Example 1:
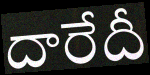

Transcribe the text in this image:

దారేదీ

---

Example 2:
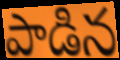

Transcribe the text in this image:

పాడిన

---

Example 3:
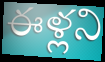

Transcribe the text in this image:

ఈళ్లని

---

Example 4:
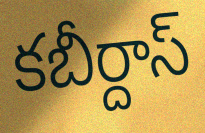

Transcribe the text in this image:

కబీర్దాస్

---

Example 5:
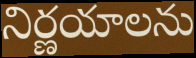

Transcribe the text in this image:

నిర్ణయాలను